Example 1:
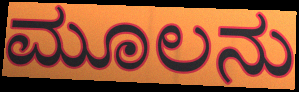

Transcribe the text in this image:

ಮೂಲನು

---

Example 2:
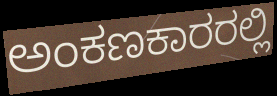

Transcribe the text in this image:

ಅಂಕಣಕಾರರಲ್ಲಿ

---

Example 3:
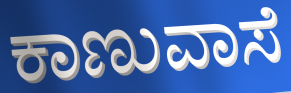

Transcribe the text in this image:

ಕಾಣುವಾಸೆ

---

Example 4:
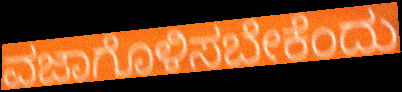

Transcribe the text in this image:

ವಜಾಗೊಳಿಸಬೇಕೆಂದು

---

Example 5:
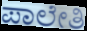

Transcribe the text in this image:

ಪಾಲೇತಿ